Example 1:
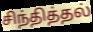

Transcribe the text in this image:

சிந்தித்தல்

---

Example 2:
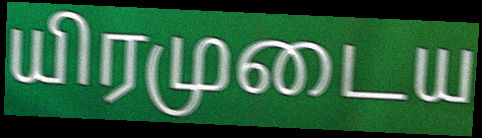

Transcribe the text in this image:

யிரமுடைய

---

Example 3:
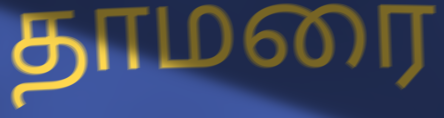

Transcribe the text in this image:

தாமரை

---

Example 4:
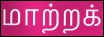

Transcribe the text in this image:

மாற்றக்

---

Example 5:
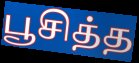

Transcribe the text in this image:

பூசித்த